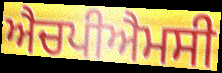
ਐਚਪੀਐਮਸੀ